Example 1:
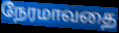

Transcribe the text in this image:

நேரமாவதை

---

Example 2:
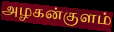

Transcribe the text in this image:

அழகன்குளம்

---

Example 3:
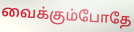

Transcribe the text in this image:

வைக்கும்போதே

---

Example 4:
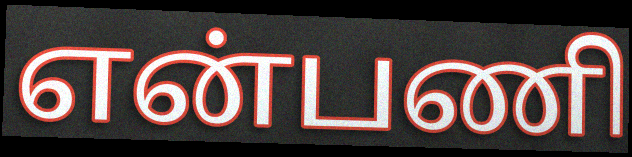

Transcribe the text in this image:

என்பணி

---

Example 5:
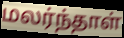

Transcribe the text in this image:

மலர்ந்தாள்